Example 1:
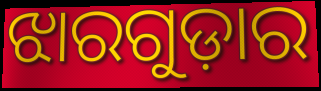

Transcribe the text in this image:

ଝାରଗୁଡ଼ାର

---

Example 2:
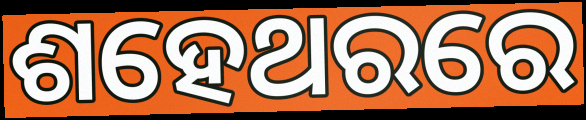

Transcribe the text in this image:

ଶହେଥରରେ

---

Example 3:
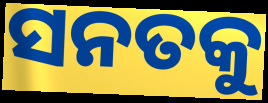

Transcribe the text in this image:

ସନତକୁ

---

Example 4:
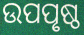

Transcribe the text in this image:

ଉପପୃଷ୍ଠ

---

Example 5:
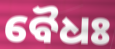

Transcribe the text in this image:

ବୈଧଃ